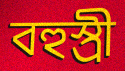
বহুস্ত্ৰী